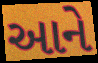
આને